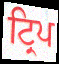
ਟ੍ਰਿਪ